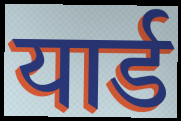
यार्ड